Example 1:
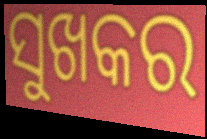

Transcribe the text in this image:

ସୁଖକର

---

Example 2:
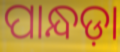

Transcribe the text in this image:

ପାନ୍ଧଡ଼ା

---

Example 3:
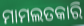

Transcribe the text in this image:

ମାମଲତକାରି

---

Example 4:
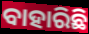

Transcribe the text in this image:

ବାହାରିଛି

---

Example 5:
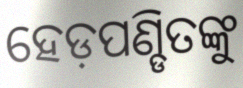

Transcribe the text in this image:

ହେଡ଼ପଣ୍ଡିତଙ୍କୁ